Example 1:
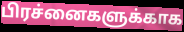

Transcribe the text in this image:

பிரச்னைகளுக்காக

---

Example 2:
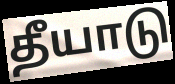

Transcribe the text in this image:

தீயாடு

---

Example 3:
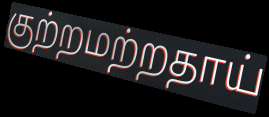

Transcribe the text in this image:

குற்றமற்றதாய்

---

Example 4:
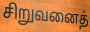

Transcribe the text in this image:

சிறுவனைத்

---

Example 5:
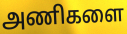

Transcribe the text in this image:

அணிகளை